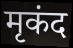
मृकंद